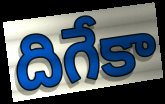
దిగేకా